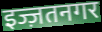
इज्ज़तनगर